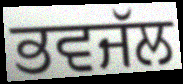
ਭਵਜੱਲ